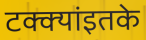
टक्क्यांइतके